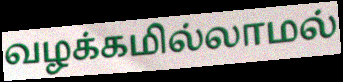
வழக்கமில்லாமல்